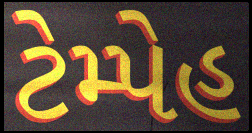
ટેમ્પેહ